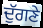
ਦੁੱਗਣੇ